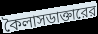
কৈলাসডাক্তারের